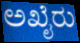
ಅಖೈರು